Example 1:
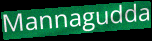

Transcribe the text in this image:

Mannagudda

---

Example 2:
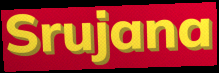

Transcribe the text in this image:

Srujana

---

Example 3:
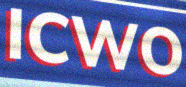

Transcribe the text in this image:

ICWO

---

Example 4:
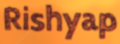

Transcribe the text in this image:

Rishyap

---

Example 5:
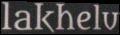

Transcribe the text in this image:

lakhelu